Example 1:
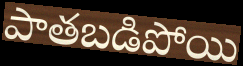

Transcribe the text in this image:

పాతబడిపోయి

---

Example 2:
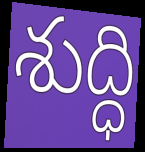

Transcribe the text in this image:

శుద్ధి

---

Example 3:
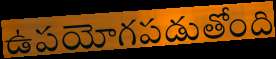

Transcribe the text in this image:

ఉపయోగపడుతోంది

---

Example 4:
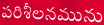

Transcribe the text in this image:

పరిశీలనమును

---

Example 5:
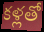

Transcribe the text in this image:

కళ్లతో